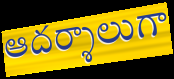
ఆదర్శాలుగా